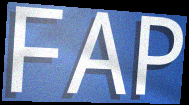
FAP